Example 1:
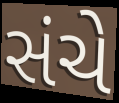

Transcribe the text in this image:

સંચે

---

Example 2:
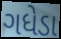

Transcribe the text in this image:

ગધેડા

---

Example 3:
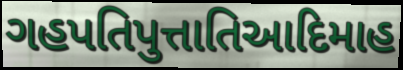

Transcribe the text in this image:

ગહપતિપુત્તાતિઆદિમાહ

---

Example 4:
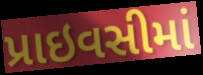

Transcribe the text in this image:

પ્રાઇવસીમાં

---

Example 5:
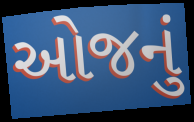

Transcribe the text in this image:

ઓજનું